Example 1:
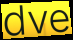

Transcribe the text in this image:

dve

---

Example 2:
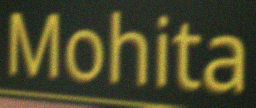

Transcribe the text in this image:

Mohita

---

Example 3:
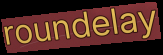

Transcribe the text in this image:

roundelay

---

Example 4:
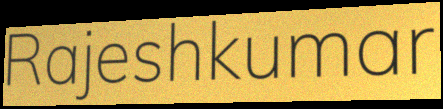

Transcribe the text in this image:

Rajeshkumar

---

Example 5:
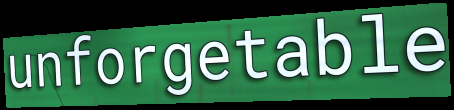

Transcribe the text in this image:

unforgetable